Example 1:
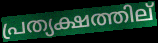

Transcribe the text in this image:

പ്രത്യക്ഷത്തില്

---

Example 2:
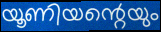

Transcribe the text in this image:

യൂണിയന്റെയും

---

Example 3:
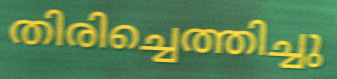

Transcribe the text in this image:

തിരിച്ചെത്തിച്ചു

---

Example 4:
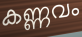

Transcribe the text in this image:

കണ്ണവം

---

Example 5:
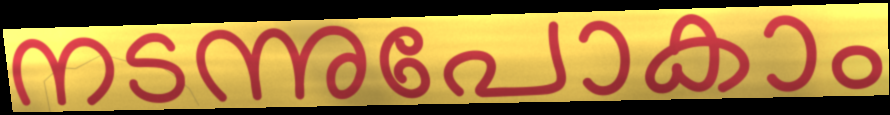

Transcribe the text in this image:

നടന്നുപോകാം